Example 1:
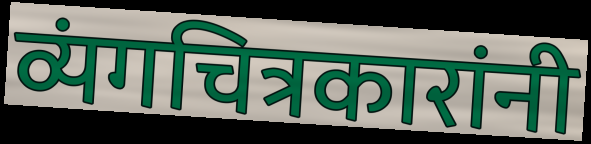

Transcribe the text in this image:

व्यंगचित्रकारांनी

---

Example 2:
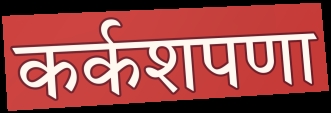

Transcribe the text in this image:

कर्कशपणा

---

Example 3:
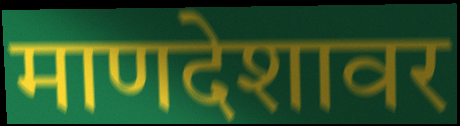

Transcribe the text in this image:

माणदेशावर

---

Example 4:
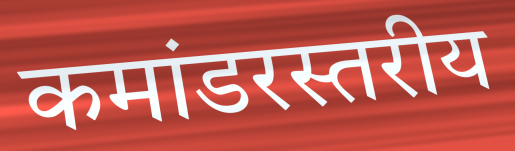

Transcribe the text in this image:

कमांडरस्तरीय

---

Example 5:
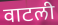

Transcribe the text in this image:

वाटली